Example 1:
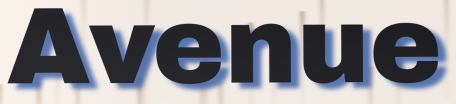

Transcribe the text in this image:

Avenue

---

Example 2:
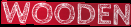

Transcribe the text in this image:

WOODEN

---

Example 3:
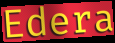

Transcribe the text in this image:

Edera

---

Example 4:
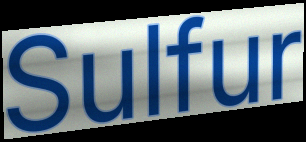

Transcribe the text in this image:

Sulfur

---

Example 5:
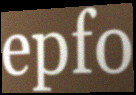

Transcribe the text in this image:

epfo